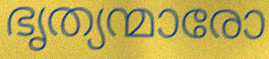
ഭൃത്യന്മാരോ